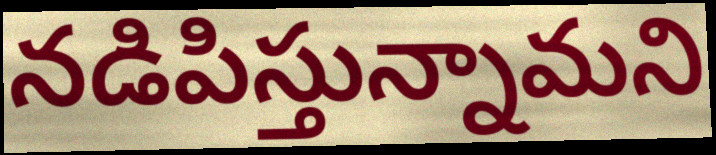
నడిపిస్తున్నామని